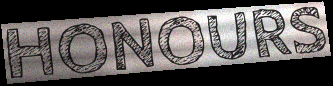
HONOURS